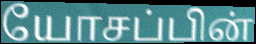
யோசப்பின்